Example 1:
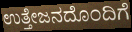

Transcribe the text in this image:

ಉತ್ತೇಜನದೊಂದಿಗೆ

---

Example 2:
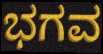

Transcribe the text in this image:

ಭಗವ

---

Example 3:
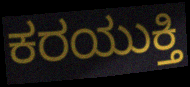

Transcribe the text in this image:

ಕರಯುಕ್ತಿ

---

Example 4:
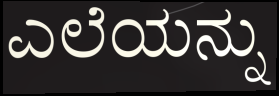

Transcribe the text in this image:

ಎಲೆಯನ್ನು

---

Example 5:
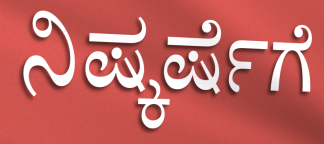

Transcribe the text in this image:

ನಿಷ್ಕರ್ಷೆಗೆ